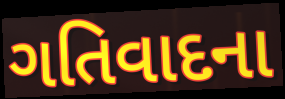
ગતિવાદના